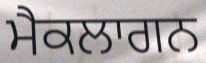
ਮੈਕਲਾਗਨ